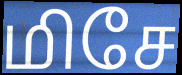
மிசே